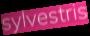
sylvestris